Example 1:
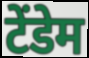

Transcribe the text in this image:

टेंडेम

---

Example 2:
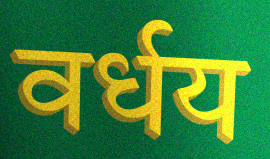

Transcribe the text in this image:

वर्धय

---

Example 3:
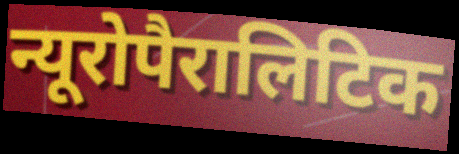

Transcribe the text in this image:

न्यूरोपैरालिटिक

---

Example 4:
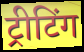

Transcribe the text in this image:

ट्रीटिंग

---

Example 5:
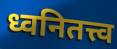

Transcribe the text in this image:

ध्वनितत्त्व